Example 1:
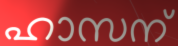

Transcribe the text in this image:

ഹാസന്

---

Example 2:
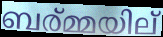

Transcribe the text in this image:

ബര്മ്മയില്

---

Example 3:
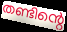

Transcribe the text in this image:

തണ്ടിന്റെ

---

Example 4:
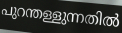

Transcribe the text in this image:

പുറന്തള്ളുന്നതിൽ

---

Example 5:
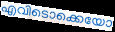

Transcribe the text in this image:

എവിടൊക്കെയോ